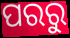
ପରରୁ